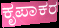
ಕೃಪಾಕರ